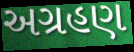
અગ્રહણ